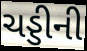
ચડ્ડીની